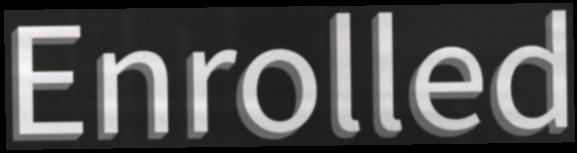
Enrolled